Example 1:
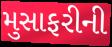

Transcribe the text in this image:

મુસાફરીની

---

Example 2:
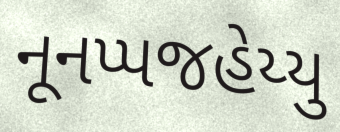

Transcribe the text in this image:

નૂનપ્પજહેય્યુ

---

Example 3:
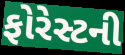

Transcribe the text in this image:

ફોરેસ્ટની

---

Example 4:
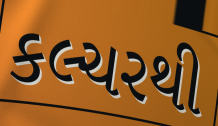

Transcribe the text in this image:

કલ્ચરથી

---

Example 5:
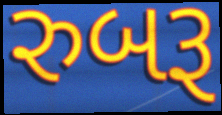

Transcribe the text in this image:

રુબરૂ